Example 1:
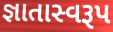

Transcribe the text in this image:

જ્ઞાતાસ્વરૂપ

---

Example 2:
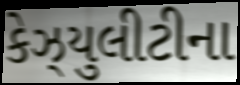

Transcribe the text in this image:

કેઝ્યુલીટીના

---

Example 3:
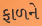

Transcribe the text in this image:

ફાળને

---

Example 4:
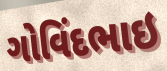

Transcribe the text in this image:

ગોવિંદભાઇ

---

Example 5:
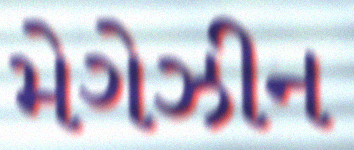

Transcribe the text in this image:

મેગેઝીન